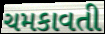
ચમકાવતી